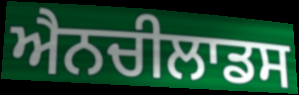
ਐਨਚੀਲਾਡਸ